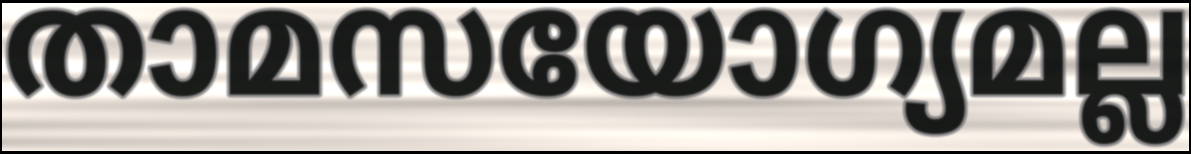
താമസയോഗ്യമല്ല